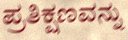
ಪ್ರತಿಕ್ಷಣವನ್ನು